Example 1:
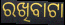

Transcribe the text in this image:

ରଖିବାଟା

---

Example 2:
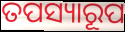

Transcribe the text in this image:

ତପସ୍ୟାରୂପ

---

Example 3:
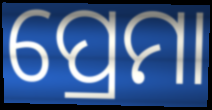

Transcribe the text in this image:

ପ୍ରେମା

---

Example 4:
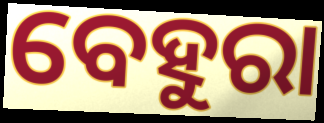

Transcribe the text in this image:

ବେହୁରା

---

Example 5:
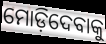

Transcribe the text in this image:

ମୋଡ଼ିଦେବାକୁ